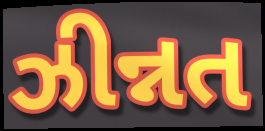
ઝીન્નત